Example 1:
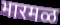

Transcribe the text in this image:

भारमळ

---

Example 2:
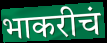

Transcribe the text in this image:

भाकरीचं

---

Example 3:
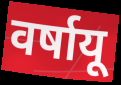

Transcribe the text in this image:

वर्षायू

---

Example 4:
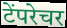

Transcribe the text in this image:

टेंपरेचर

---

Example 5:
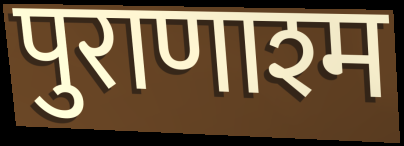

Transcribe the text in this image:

पुराणाश्म